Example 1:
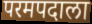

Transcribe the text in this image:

परमपदाला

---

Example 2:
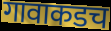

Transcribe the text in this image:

गावाकडच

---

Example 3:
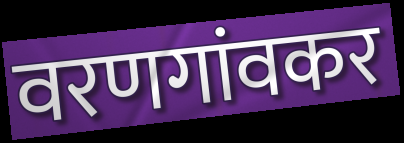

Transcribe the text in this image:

वरणगांवकर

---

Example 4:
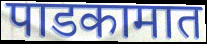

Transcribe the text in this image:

पाडकामात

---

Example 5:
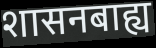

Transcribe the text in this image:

शासनबाह्य